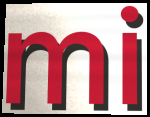
mi